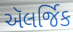
ઍલર્જિક